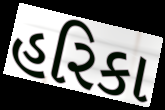
હરિકા